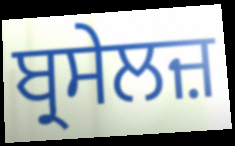
ਬ੍ਰਸੇਲਜ਼